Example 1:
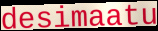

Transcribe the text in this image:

desimaatu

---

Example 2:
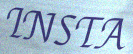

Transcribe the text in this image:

INSTA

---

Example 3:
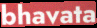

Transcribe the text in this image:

bhavata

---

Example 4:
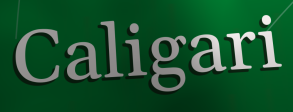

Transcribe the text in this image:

Caligari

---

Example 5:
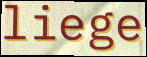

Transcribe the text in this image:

liege